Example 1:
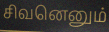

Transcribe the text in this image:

சிவனெனும்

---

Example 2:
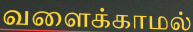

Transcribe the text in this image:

வளைக்காமல்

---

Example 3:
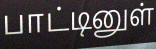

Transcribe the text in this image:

பாட்டினுள்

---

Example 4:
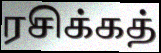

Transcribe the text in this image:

ரசிக்கத்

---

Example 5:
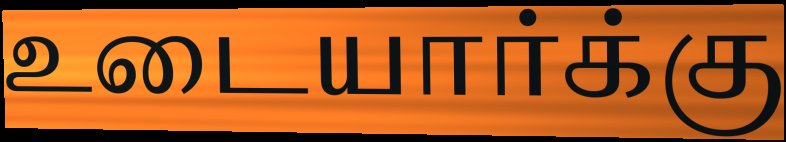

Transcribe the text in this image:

உடையார்க்கு